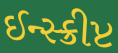
ઈન્સ્ક્રીપ્ટ